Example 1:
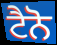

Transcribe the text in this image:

ਟੈਨੋ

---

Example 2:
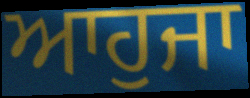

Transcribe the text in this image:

ਆਹੁਜਾ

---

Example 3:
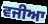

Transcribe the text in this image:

ਵਜੀਆ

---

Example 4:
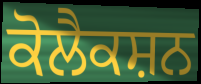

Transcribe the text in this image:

ਕੋਲੈਕਸ਼ਨ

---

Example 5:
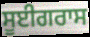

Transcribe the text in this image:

ਸੂਈਗਰਾਸ